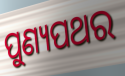
ପୁଣ୍ୟପଥର